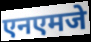
एनएमजे